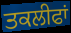
ਤਕਲੀਫਾਂ